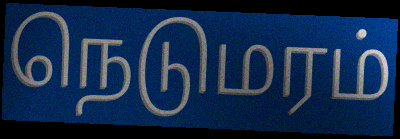
நெடுமரம்